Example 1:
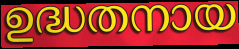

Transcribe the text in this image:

ഉദ്ധതനായ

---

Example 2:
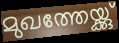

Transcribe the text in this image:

മുഖത്തേയ്ക്കു്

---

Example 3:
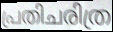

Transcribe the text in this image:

പ്രതിചരിത്ര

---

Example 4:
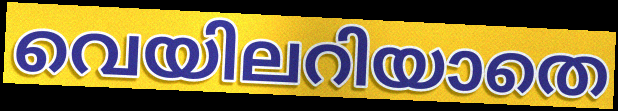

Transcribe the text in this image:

വെയിലറിയാതെ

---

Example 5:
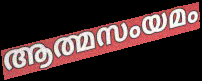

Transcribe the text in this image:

ആത്മസംയമം